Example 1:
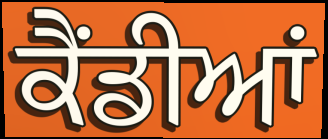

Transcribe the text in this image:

ਕੈਂਡੀਆਂ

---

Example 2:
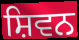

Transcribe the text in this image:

ਸ਼ਿਵਨ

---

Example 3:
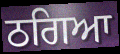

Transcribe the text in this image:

ਠਗਿਆ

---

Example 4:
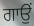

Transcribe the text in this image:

ਗਾਉਂ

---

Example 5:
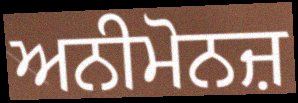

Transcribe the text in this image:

ਅਨੀਮੋਨਜ਼